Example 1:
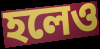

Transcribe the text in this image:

হলেও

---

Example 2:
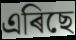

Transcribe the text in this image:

এৰিছে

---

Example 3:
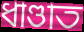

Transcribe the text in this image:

ধাণ্ডাত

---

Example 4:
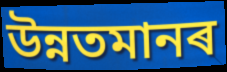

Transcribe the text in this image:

উন্নতমানৰ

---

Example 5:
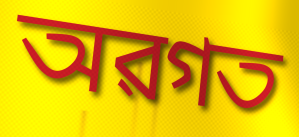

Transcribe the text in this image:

অৱগত